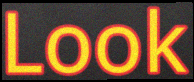
Look